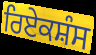
ਰਿਏਕਸ਼ੰਸ